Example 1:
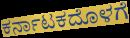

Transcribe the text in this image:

ಕರ್ನಾಟಕದೊಳಗೆ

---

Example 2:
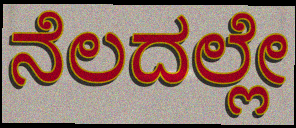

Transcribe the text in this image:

ನೆಲದಲ್ಲೇ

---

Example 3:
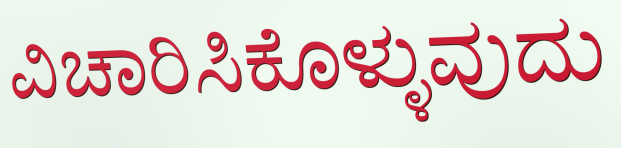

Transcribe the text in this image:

ವಿಚಾರಿಸಿಕೊಳ್ಳುವುದು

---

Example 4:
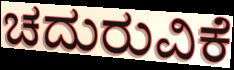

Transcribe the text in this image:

ಚದುರುವಿಕೆ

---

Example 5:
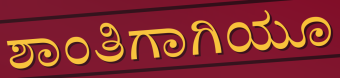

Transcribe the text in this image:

ಶಾಂತಿಗಾಗಿಯೂ